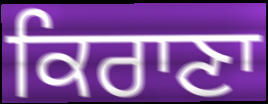
ਕਿਰਾਣਾ